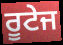
ਰੂਟੇਜ